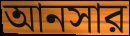
আনসার